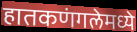
हातकणंगलेमध्ये